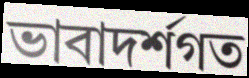
ভাবাদৰ্শগত